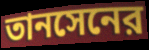
তানসেনের